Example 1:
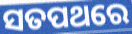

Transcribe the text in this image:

ସତପଥରେ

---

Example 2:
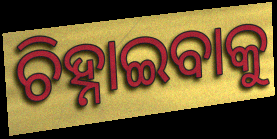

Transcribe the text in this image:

ଚିହ୍ନାଇବାକୁ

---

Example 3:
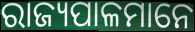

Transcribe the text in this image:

ରାଜ୍ୟପାଳମାନେ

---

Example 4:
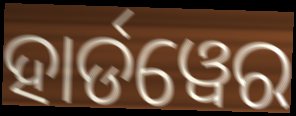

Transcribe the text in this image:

ହାର୍ଡୱେର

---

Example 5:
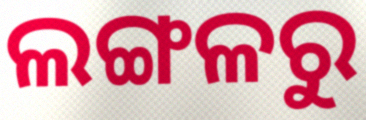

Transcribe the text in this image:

ଲଙ୍ଗଳରୁ